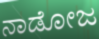
ನಾಡೋಜ